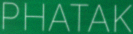
PHATAK